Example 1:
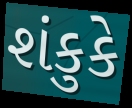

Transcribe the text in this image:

શંકુકે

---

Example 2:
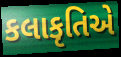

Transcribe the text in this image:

કલાકૃતિએ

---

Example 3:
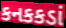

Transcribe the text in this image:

કનકકડાં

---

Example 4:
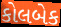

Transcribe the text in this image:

કોલબેક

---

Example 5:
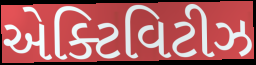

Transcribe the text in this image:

એક્ટિવિટીઝ